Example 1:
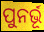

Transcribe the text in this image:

ପୁନର୍ଭୂ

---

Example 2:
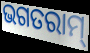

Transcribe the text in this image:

ଭଗତରାମ୍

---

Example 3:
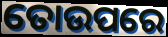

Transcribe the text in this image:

ତୋଉପରେ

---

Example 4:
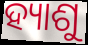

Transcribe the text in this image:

ହ୍ୟାଶୁ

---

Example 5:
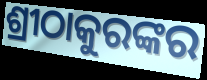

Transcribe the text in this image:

ଶ୍ରୀଠାକୁରଙ୍କର